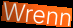
Wrenn